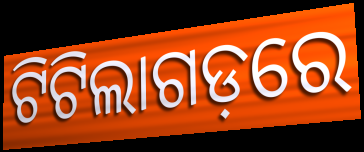
ଟିଟିଲାଗଡ଼ରେ